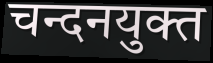
चन्दनयुक्त